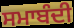
ਸਮਾਬੰਦੀ